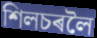
শিলচৰলৈ